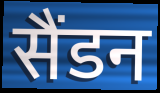
सैंडन